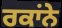
ਰਕਾਂਨੇ